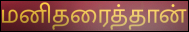
மனிதரைத்தான்